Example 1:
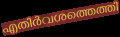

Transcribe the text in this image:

എതിർവശത്തെത്തി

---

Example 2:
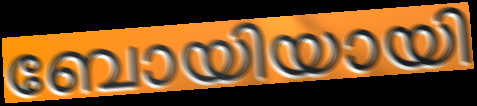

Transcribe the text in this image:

ബോയിയായി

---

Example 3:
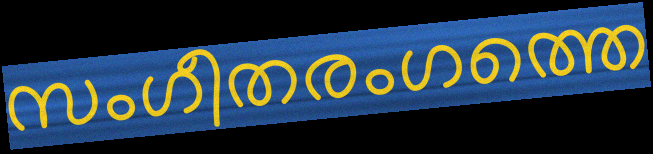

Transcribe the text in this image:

സംഗീതരംഗത്തെ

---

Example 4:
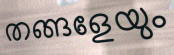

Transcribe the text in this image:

തങ്ങളേയും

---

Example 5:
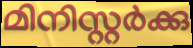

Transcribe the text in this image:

മിനിസ്റ്റർക്കു